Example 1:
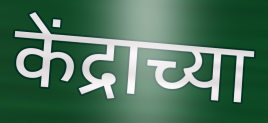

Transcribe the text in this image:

केंद्राच्या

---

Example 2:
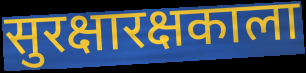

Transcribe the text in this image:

सुरक्षारक्षकाला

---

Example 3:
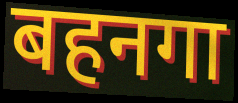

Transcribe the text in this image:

बहनगा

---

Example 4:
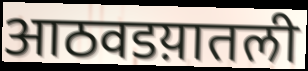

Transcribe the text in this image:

आठवडय़ातली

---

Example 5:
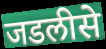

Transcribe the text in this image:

जडलीसे